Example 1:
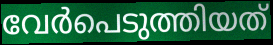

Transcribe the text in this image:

വേർപെടുത്തിയത്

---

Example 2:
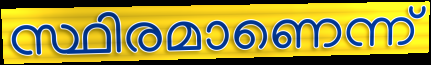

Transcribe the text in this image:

സ്ഥിരമാണെന്ന്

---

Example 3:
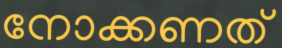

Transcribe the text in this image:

നോക്കണത്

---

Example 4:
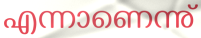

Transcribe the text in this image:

എന്നാണെന്നു്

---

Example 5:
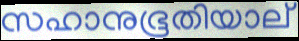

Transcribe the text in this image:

സഹാനുഭൂതിയാല്